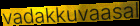
vadakkuvaasal